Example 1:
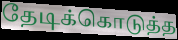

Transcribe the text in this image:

தேடிக்கொடுத்த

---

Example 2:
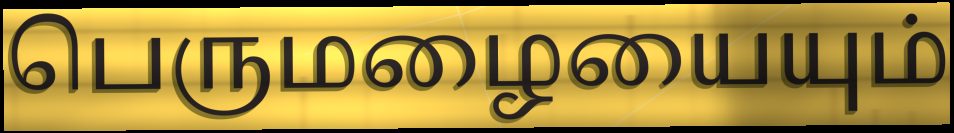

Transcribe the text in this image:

பெருமழையையும்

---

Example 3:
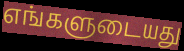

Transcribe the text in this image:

எங்களுடையது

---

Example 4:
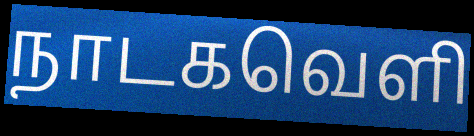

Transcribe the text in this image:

நாடகவெளி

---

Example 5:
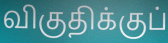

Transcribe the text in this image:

விகுதிக்குப்